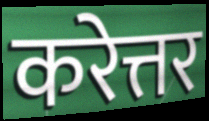
करेत्तर